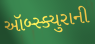
ઑબ્સ્ક્યુરાની